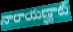
నారాయణ్ఘాట్